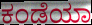
ಕಂಡೆಯಾ